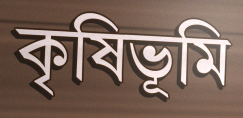
কৃষিভূমি